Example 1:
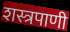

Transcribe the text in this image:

शस्त्रपाणी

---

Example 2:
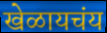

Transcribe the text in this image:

खेळायचंय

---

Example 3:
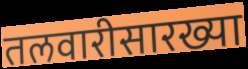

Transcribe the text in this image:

तलवारीसारख्या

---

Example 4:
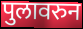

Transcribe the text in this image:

पुलावरुन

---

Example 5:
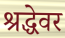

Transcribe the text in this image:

श्रद्धेवर